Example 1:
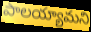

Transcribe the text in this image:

పాలయ్యామని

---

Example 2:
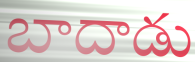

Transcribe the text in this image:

బాదాడు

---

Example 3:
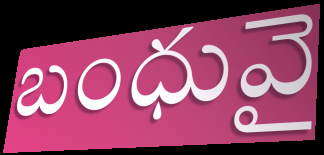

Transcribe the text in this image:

బంధువై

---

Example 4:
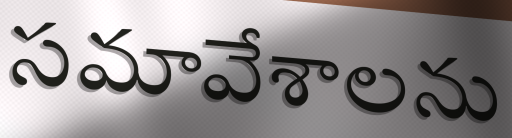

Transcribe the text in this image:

సమావేశాలను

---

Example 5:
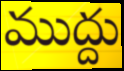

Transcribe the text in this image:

ముద్దు